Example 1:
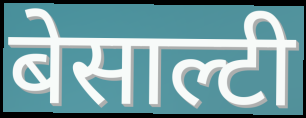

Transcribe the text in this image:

बेसाल्टी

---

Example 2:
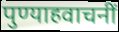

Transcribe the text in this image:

पुण्याहवाचनीं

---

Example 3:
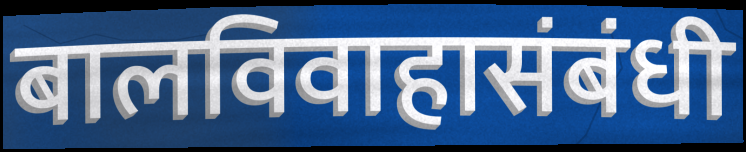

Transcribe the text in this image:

बालविवाहासंबंधी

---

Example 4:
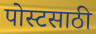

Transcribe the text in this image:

पोस्टसाठी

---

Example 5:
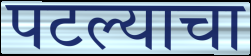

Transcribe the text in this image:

पटल्याचा